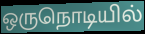
ஒருநொடியில்